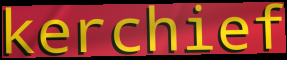
kerchief